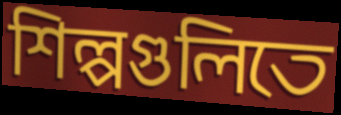
শিল্পগুলিতে